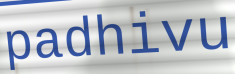
padhivu